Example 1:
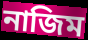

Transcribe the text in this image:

নাজিম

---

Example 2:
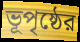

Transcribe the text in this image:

ভূপৃষ্ঠের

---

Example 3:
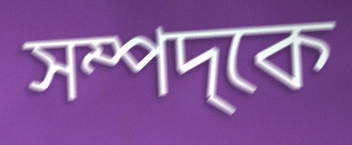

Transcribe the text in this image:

সম্পদ্‌কে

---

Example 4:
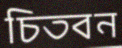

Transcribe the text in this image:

চিতবন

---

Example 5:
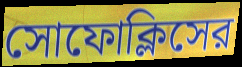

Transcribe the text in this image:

সোফোক্লিসের